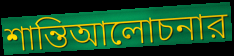
শান্তিআলোচনার